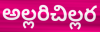
అల్లరిచిల్లర